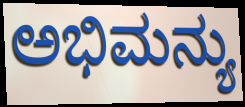
ಅಭಿಮನ್ಯು